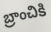
బ్రాంచికి